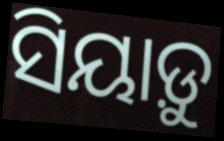
ସିୟାଡ଼ୁ